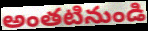
అంతటినుండి